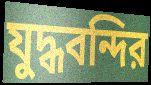
যুদ্ধবন্দির